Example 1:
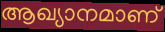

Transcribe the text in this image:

ആഖ്യാനമാണ്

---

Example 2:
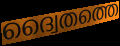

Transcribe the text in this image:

ദ്വൈതത്തെ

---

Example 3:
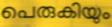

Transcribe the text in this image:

പെരുകിയും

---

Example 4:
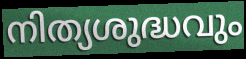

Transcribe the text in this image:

നിത്യശുദ്ധവും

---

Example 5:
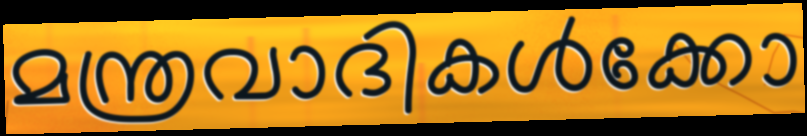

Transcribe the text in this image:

മന്ത്രവാദികൾക്കോ